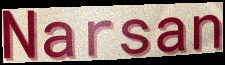
Narsan